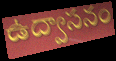
ఉద్వాసనం